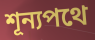
শূন্যপথে